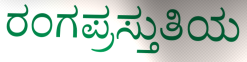
ರಂಗಪ್ರಸ್ತುತಿಯ